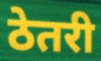
ठेतरी